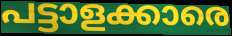
പട്ടാളക്കാരെ